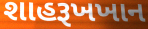
શાહરૂખખાન